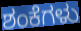
ಶಂಕೆಗಳು